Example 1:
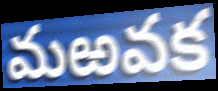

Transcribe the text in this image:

మఱవక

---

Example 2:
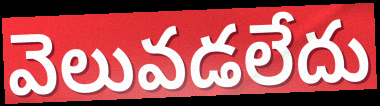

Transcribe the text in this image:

వెలువడలేదు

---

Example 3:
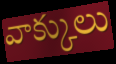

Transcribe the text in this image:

వాక్కులు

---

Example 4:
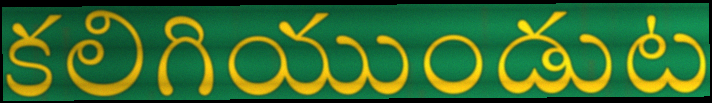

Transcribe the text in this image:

కలిగియుండుట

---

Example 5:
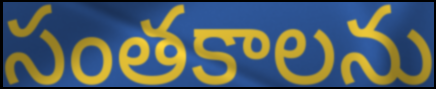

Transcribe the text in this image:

సంతకాలను